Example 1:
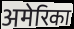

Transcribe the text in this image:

अमेरिका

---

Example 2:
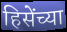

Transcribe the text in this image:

हिसेंच्या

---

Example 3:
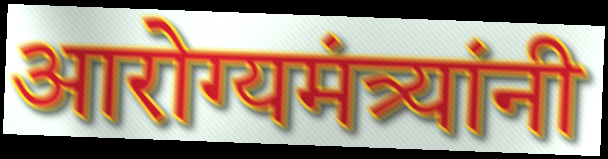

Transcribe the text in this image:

आरोग्यमंत्र्यांनी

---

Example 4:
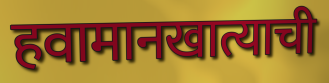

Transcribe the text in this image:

हवामानखात्याची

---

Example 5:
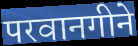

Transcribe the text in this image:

परवानगीने